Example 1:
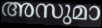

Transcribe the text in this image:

അസുമാ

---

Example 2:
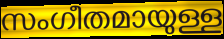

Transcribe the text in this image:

സംഗീതമായുള്ള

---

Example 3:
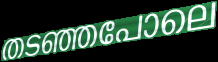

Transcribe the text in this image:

തടഞ്ഞപോലെ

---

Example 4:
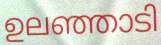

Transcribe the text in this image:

ഉലഞ്ഞാടി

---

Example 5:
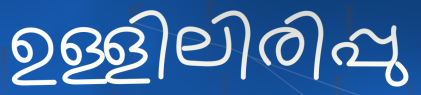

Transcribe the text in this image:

ഉള്ളിലിരിപ്പു